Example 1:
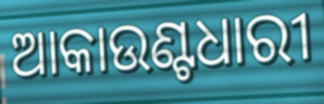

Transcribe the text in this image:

ଆକାଉଣ୍ଟଧାରୀ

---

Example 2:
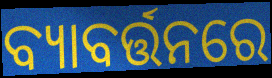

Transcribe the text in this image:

ବ୍ୟାବର୍ତ୍ତନରେ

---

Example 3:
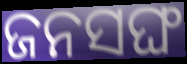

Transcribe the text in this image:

ଜନସଙ୍ଘ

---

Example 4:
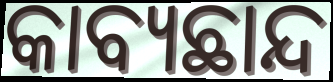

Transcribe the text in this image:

କାବ୍ୟଛାନ୍ଦ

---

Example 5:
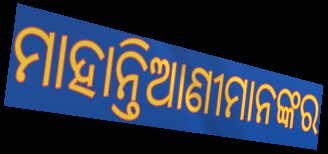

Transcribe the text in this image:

ମାହାନ୍ତିଆଣୀମାନଙ୍କର